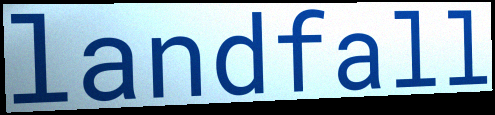
landfall